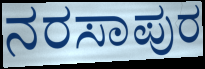
ನರಸಾಪುರ